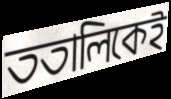
ততালিকেই